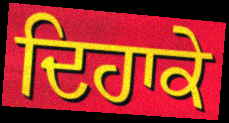
ਦਿਹਾਕੇ